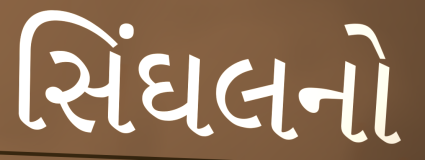
સિંઘલનો